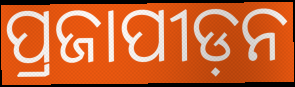
ପ୍ରଜାପୀଡ଼ନ